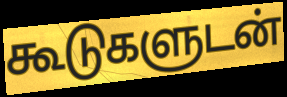
கூடுகளுடன்